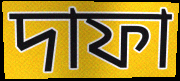
দাফা